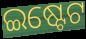
ଇଷ୍ଟେଟ